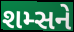
શમ્સને